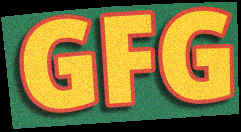
GFG